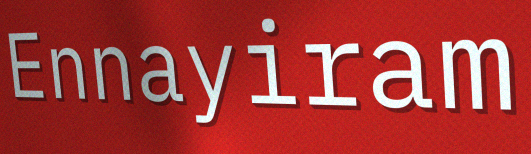
Ennayiram